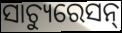
ସାଚ୍ୟୁରେସନ୍